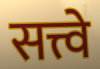
सत्त्वे